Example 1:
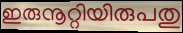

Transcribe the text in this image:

ഇരുനൂറ്റിയിരുപതു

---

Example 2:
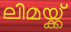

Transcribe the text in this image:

ലിമയ്ക്ക്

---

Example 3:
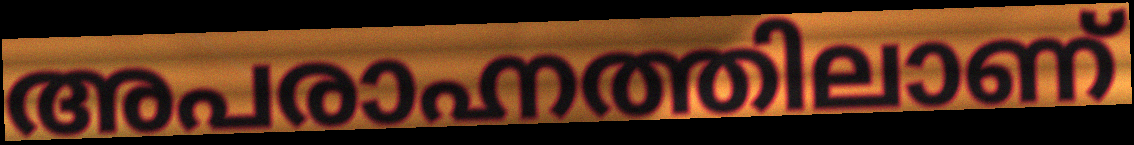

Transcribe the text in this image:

അപരാഹ്നത്തിലാണ്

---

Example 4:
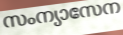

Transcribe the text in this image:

സംന്യാസേന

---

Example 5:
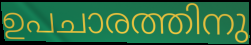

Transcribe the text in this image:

ഉപചാരത്തിനു